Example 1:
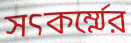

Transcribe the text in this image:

সৎকর্ম্মের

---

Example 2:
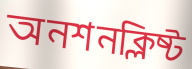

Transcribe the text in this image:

অনশনক্লিষ্ট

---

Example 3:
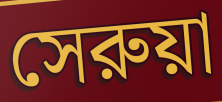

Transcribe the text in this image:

সেরুয়া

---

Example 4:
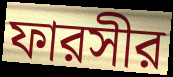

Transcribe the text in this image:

ফারসীর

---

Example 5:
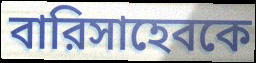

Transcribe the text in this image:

বারিসাহেবকে